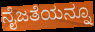
ನೈಜತೆಯನ್ನೂ